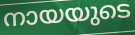
നായയുടെ